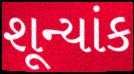
શૂન્યાંક